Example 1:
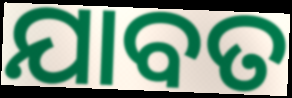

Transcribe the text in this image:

ଯାବତ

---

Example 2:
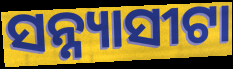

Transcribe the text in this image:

ସନ୍ନ୍ୟାସୀଟା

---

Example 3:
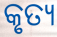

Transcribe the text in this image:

କୃତ୍ଯ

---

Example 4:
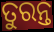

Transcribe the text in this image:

ତୁରନ୍ତ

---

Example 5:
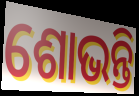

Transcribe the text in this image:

ଶୋଭନ୍ତି